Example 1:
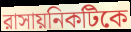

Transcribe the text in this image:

রাসায়নিকটিকে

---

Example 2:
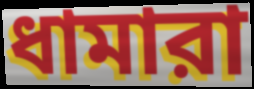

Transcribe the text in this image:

ধামারা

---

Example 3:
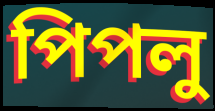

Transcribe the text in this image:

পিপলু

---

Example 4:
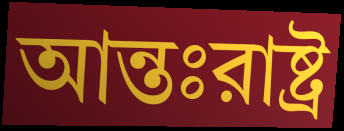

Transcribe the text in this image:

আন্তঃরাষ্ট্র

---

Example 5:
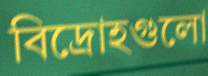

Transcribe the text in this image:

বিদ্রোহগুলো